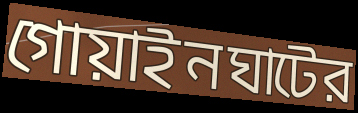
গোয়াইনঘাটের